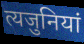
त्यजुनियां